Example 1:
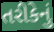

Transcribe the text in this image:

તરીકેનું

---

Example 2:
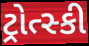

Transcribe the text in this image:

ટ્રોત્સ્કી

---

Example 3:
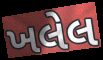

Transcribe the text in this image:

ખલેલ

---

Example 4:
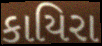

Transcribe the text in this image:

કાયિરા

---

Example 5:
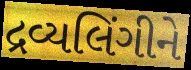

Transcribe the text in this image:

દ્રવ્યલિંગીને